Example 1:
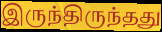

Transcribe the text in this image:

இருந்திருந்தது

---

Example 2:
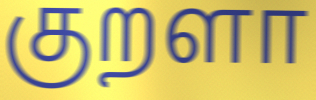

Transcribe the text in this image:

குறளா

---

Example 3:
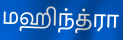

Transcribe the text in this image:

மஹிந்த்ரா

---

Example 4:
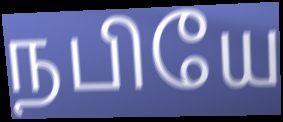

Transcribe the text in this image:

நபியே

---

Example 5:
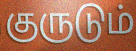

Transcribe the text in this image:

குருடும்